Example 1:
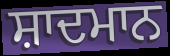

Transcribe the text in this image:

ਸ਼ਾਦਮਾਨ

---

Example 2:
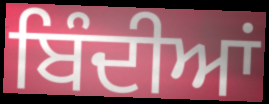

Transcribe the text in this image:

ਬਿੰਦੀਆਂ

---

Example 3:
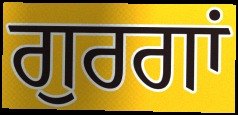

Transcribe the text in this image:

ਗੁਰਗਾਂ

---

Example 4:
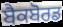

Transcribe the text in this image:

ਬੈਕਬੋਰਡ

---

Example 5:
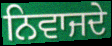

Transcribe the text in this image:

ਨਿਵਾਜਦੇ